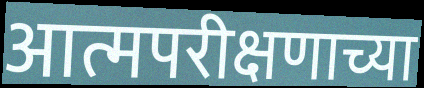
आत्मपरीक्षणाच्या